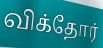
விக்தோர்